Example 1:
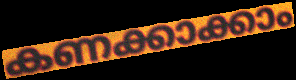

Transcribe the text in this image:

കണക്കാക്കാം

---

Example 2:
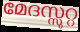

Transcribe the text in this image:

മേദസ്സുറ്റ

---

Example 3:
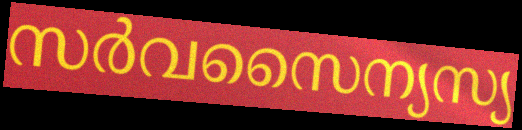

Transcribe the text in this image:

സർവസൈന്യസ്യ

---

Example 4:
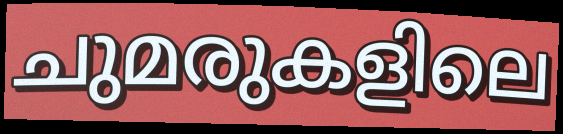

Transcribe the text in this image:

ചുമരുകളിലെ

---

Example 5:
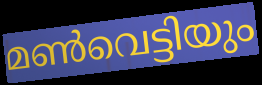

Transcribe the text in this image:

മൺവെട്ടിയും